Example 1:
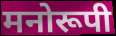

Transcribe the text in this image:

मनोरूपी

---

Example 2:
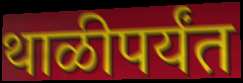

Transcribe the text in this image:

थाळीपर्यंत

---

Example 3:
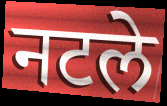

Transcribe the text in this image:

नटले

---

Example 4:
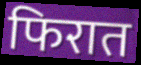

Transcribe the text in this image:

फिरात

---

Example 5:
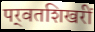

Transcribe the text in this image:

पर्वतशिखरीं